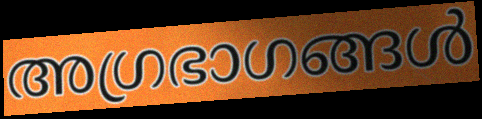
അഗ്രഭാഗങ്ങൾ